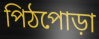
পিঠপোড়া